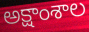
అక్షాంశాల